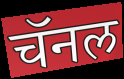
चॅनल